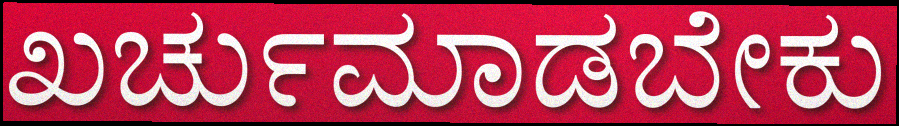
ಖರ್ಚುಮಾಡಬೇಕು